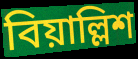
বিয়াল্লিশ